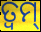
ତ୍ଵମ୍